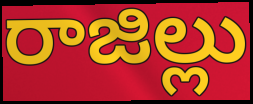
రాజిల్లు